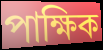
পাক্ষিক